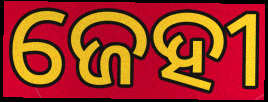
ଜେହୀ